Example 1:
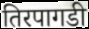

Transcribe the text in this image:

तिरपागडी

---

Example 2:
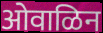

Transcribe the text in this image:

ओवाळिन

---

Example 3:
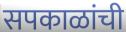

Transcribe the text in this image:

सपकाळांची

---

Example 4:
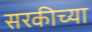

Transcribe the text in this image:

सरकीच्या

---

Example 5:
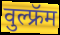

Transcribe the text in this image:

वुल्फ्रॅम